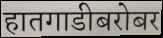
हातगाडीबरोबर